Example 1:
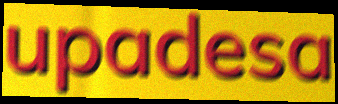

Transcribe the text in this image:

upadesa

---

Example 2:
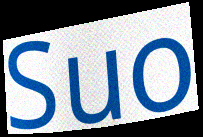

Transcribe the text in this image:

Suo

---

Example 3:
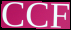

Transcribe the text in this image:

CCF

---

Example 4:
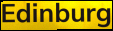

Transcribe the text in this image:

Edinburg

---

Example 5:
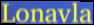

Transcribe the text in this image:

Lonavla